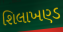
શિલાખણ્ડ